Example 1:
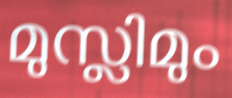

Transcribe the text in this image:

മുസ്ലിമും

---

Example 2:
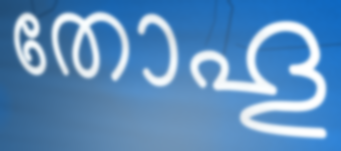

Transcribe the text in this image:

തോഹൂ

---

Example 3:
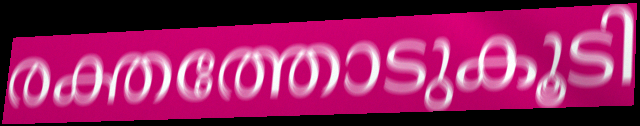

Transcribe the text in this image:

രക്തത്തോടുകൂടി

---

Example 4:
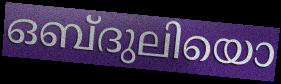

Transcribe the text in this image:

ഒബ്ദുലിയൊ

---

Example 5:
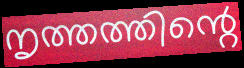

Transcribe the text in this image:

നൃത്തത്തിന്റെ